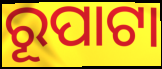
ରୂପାଟା